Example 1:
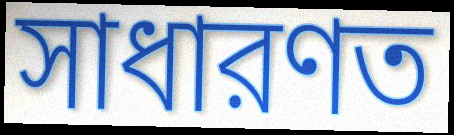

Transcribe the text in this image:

সাধারণত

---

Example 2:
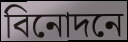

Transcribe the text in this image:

বিনোদনে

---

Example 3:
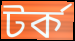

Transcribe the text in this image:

টর্ক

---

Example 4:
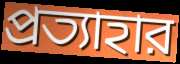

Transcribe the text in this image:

প্রত্যাহার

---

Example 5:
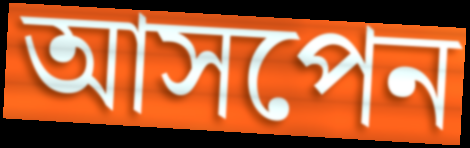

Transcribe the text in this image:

আসপেন